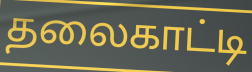
தலைகாட்டி